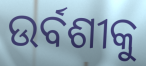
ଉର୍ବଶୀକୁ